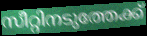
സീറ്റിനടുത്തേക്ക്